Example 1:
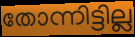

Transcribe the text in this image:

തോന്നിട്ടില്ല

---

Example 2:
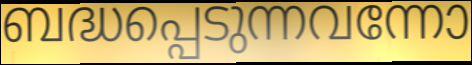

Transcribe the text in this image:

ബദ്ധപ്പെടുന്നവന്നോ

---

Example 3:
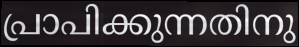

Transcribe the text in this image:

പ്രാപിക്കുന്നതിനു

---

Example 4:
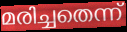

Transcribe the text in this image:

മരിച്ചതെന്ന്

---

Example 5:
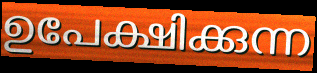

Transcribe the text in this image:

ഉപേക്ഷിക്കുന്ന